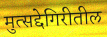
मुत्सद्देगिरीतील